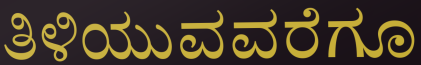
ತಿಳಿಯುವವರೆಗೂ